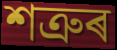
শত্ৰুৰ